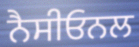
ਨੈਸੀਓਨਲ